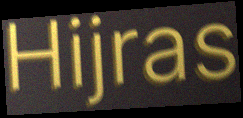
Hijras